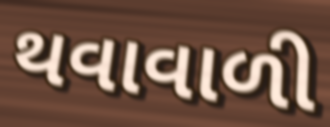
થવાવાળી